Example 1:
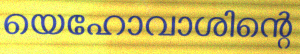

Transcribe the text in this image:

യെഹോവാശിന്റെ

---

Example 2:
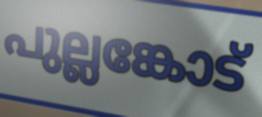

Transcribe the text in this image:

പുല്ലങ്കോട്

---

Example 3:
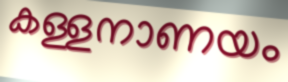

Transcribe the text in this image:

കള്ളനാണയം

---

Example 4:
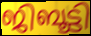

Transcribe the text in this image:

ജിബൂട്ടി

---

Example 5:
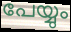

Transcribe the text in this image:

പേയ്യും